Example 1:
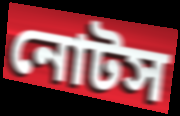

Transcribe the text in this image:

নোটস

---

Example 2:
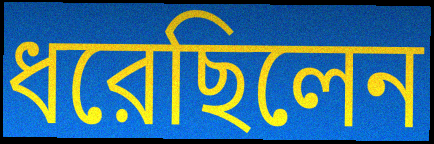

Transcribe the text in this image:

ধরেছিলেন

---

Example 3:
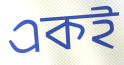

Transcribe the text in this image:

একই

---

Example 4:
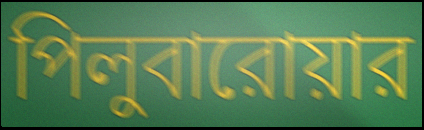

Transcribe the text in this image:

পিলুবারোয়ার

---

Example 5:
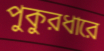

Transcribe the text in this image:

পুকুরধারে